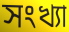
সংখ্যা